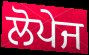
ਲੋਪੇਜ